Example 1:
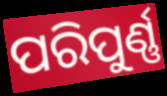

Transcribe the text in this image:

ପରିପୁର୍ଣ୍ଣ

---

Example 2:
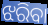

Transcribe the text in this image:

ଝରିବା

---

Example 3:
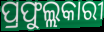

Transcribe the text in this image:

ପ୍ରଫୁଲ୍ଲକାରୀ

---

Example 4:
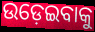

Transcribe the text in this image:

ଉଡ଼େଇବାକୁ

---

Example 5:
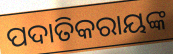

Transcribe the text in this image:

ପଦାତିକରାୟଙ୍କ